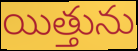
యిత్తును